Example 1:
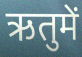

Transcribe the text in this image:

ऋतुमें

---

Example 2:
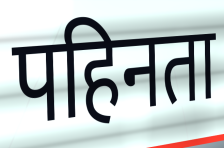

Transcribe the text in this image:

पहिनता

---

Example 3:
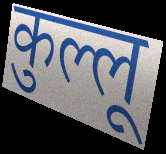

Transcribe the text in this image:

कुल्लू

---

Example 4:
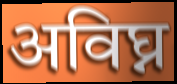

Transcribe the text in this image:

अविघ्न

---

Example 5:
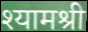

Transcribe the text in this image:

श्यामश्री